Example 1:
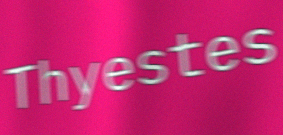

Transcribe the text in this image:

Thyestes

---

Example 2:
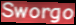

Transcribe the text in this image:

Sworgo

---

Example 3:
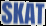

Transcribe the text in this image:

SKAT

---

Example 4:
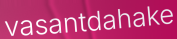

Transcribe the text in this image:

vasantdahake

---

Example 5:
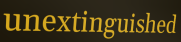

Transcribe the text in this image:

unextinguished